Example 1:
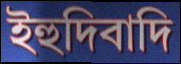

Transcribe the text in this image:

ইহুদিবাদি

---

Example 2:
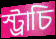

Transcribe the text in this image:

স্ট্রাচি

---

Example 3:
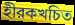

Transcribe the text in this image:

হীরকখচিত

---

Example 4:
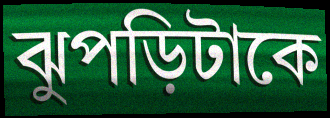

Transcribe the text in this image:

ঝুপড়িটাকে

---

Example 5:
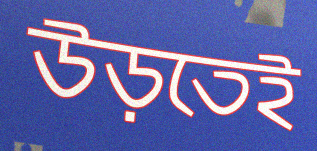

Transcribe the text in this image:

উড়তেই